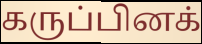
கருப்பினக்